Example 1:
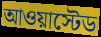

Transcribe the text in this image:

আওয়াস্টেড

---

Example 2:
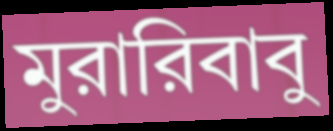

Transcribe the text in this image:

মুরারিবাবু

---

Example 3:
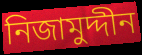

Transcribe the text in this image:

নিজামুদ্দীন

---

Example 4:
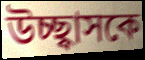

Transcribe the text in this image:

উচ্ছ্বাসকে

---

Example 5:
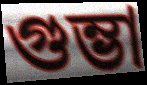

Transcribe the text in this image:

গুম্ভা